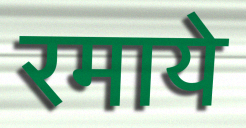
रमाये